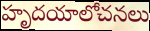
హృదయాలోచనలు